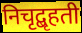
निचृद्बृहती